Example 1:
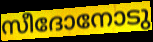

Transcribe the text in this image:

സീദോനോടു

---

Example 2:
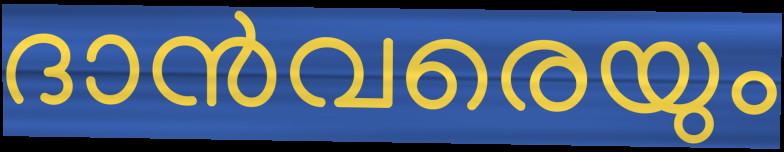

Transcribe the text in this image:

ദാൻവരെയും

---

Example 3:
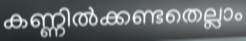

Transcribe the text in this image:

കണ്ണിൽക്കണ്ടതെല്ലാം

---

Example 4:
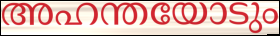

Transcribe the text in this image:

അഹന്തയോടും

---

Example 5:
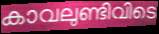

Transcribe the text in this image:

കാവലുണ്ടിവിടെ